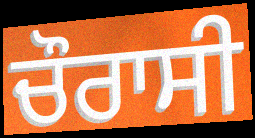
ਚੌਰਾਸੀ